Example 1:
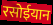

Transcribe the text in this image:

रसोईयान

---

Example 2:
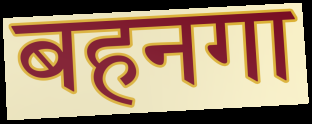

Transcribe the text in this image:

बहनगा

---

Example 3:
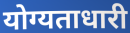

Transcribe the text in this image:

योग्यताधारी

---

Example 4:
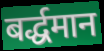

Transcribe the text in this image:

बर्द्धमान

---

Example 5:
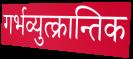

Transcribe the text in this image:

गर्भव्युत्क्रान्तिक